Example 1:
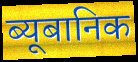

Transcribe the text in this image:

ब्यूबानिक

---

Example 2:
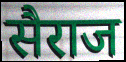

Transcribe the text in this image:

सैराज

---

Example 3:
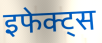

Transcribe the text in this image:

इफेक्ट्स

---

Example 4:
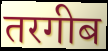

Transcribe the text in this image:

तरगीब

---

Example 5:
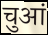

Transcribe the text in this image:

चुआं